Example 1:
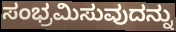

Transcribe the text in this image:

ಸಂಭ್ರಮಿಸುವುದನ್ನು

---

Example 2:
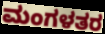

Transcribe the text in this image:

ಮಂಗಳತರ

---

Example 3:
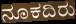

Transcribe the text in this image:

ನೂಕದಿರು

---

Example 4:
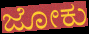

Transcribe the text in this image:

ಜೋಕು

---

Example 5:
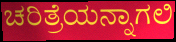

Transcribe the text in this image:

ಚರಿತ್ರೆಯನ್ನಾಗಲಿ